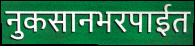
नुकसानभरपाईत